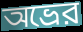
অভ্রের